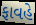
ફાવહે